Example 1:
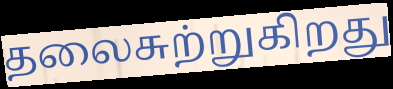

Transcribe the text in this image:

தலைசுற்றுகிறது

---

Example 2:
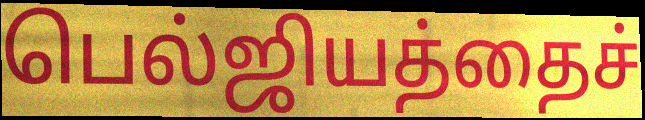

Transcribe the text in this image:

பெல்ஜியத்தைச்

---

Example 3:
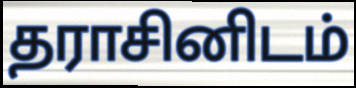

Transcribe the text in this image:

தராசினிடம்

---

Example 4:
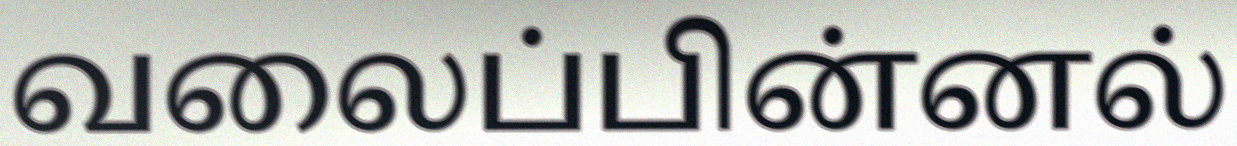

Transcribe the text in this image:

வலைப்பின்னல்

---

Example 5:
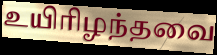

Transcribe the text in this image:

உயிரிழந்தவை